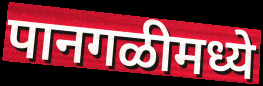
पानगळीमध्ये